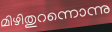
മിഴിതുറന്നൊന്നു